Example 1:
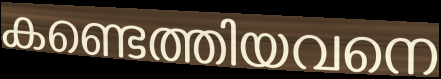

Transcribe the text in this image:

കണ്ടെത്തിയവനെ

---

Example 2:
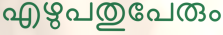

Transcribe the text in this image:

എഴുപതുപേരും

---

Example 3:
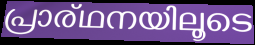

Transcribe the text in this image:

പ്രാര്ഥനയിലൂടെ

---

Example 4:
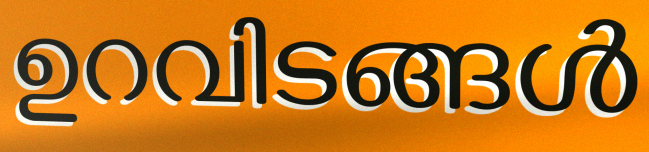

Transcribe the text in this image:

ഉറവിടങ്ങൾ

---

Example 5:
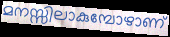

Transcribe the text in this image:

മനസ്സിലാകുമ്പോഴാണ്